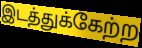
இடத்துக்கேற்ற